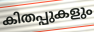
കിതപ്പുകളും